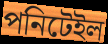
পনিটেইল